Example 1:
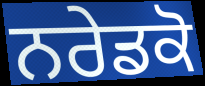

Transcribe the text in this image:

ਨਰੇਡਕੋ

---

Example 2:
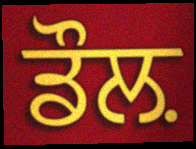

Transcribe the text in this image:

ਡੌਲ਼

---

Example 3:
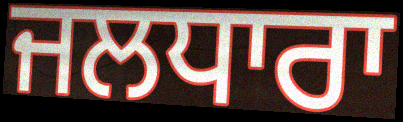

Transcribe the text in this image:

ਜਲਧਾਰਾ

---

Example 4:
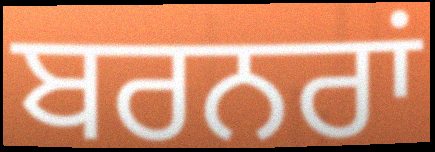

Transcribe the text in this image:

ਬਰਨਰਾਂ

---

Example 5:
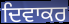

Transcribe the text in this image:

ਦਿਵਾਕਰ